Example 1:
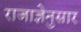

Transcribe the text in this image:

राजाज्ञेनुसार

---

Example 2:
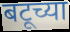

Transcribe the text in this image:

बटूच्या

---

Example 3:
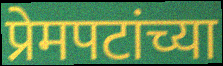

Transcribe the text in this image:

प्रेमपटांच्या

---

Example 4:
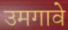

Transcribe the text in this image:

उमगावे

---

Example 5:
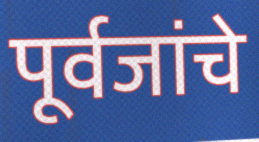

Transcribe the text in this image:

पूर्वजांचे